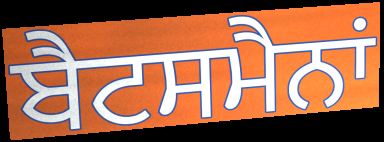
ਬੈਟਸਮੈਨਾਂ